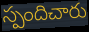
స్పందిచారు